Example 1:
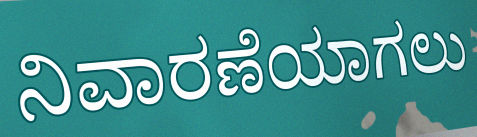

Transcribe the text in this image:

ನಿವಾರಣೆಯಾಗಲು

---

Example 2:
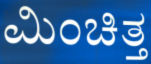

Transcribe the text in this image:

ಮಿಂಚಿತ್ತ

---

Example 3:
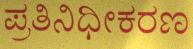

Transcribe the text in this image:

ಪ್ರತಿನಿಧೀಕರಣ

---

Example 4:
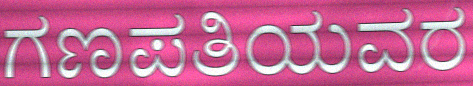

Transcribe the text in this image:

ಗಣಪತಿಯವರ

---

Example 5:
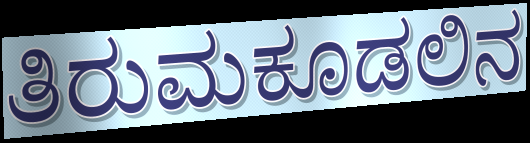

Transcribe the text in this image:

ತಿರುಮಕೂಡಲಿನ